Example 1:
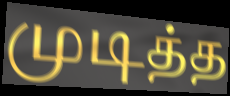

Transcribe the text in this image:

முடித்த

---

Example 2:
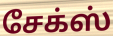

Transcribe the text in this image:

சேக்ஸ்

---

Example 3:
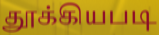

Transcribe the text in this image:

தூக்கியபடி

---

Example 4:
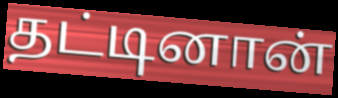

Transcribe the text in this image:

தட்டினான்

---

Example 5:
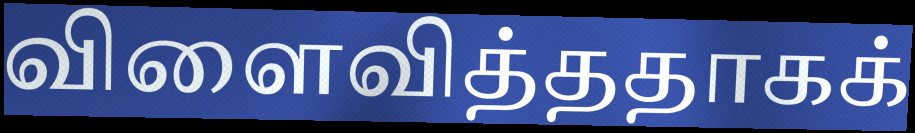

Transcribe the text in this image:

விளைவித்ததாகக்